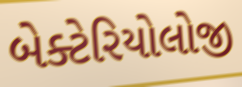
બેક્ટેરિયોલોજી